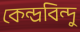
কেন্দ্রবিন্দু